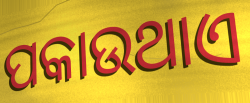
ପକାଉଥାଏ